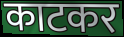
काटकर